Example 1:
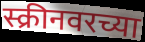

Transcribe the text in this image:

स्क्रीनवरच्या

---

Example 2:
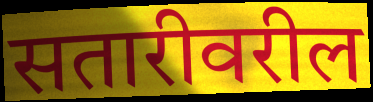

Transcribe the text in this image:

सतारीवरील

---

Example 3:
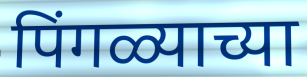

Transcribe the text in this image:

पिंगळ्याच्या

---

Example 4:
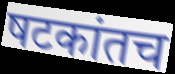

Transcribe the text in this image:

षटकांतच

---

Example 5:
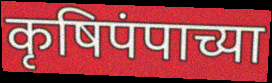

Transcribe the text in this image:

कृषिपंपाच्या